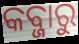
କବ୍ଜାରୁ